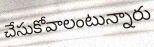
చేసుకోవాలంటున్నారు